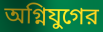
অগ্নিযুগের